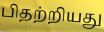
பிதற்றியது